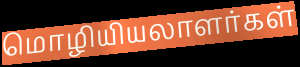
மொழியியலாளர்கள்